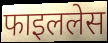
फाइललेस